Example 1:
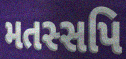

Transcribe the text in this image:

મતસ્સપિ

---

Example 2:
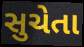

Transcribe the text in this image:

સુચેતા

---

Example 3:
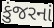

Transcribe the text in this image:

કુંજરનાં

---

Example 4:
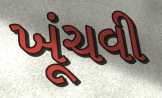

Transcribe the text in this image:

ખૂંચવી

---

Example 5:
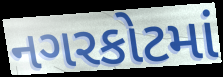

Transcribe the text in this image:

નગરકોટમાં